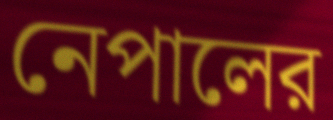
নেপালের